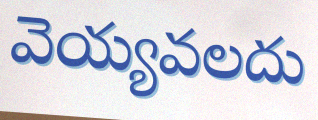
వెయ్యవలదు